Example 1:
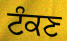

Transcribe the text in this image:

ਟੰਕਣ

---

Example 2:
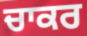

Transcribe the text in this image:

ਚਾਕਰ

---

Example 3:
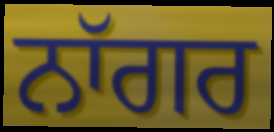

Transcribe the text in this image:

ਨਾੱਗਰ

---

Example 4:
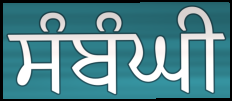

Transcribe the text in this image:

ਸੰਬੰਘੀ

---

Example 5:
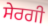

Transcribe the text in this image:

ਸੇਰਗੀ